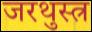
जरथुस्‍त्र